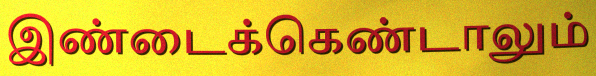
இண்டைக்கெண்டாலும்